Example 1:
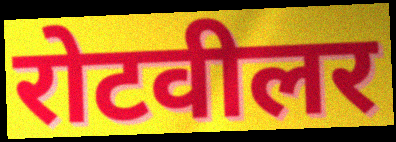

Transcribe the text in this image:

रोटवीलर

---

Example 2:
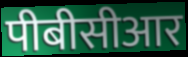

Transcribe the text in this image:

पीबीसीआर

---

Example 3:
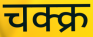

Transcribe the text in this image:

चक्क्र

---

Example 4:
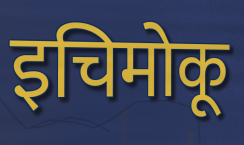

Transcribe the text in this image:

इचिमोकू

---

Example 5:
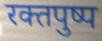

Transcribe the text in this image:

रक्तपुष्प